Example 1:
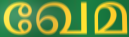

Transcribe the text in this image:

ഖേമ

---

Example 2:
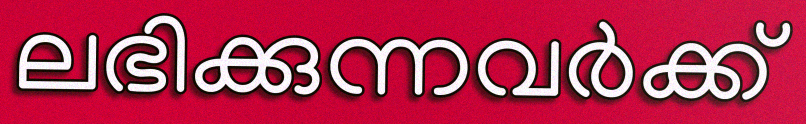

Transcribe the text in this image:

ലഭിക്കുന്നവർക്ക്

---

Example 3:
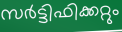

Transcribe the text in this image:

സർട്ടിഫിക്കറ്റും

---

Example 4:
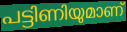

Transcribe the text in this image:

പട്ടിണിയുമാണ്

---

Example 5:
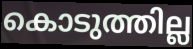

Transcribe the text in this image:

കൊടുത്തില്ല